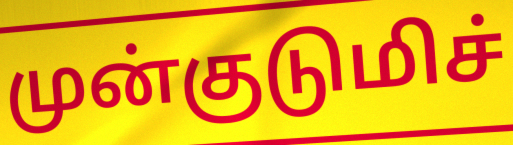
முன்குடுமிச்